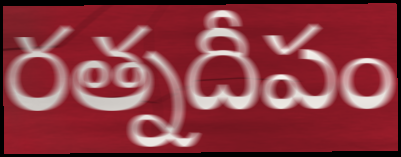
రత్నదీపం